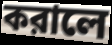
করালে